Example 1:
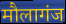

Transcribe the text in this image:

मौलागंज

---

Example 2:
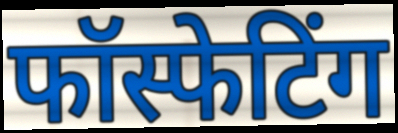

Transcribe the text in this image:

फॉस्फेटिंग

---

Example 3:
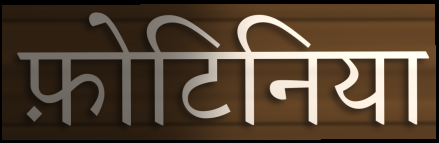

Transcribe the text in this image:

फ़ोटिनिया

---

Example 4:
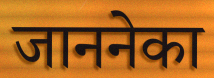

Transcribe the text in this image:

जाननेका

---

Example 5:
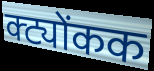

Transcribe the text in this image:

क्ट्योंकक